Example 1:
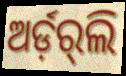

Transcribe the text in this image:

ଅର୍ଡ଼ର୍‌ଲି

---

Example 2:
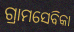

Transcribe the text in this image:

ଗ୍ରାମସେବିକା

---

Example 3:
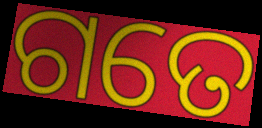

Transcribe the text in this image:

ଗତେ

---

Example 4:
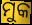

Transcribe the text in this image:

ମୁକ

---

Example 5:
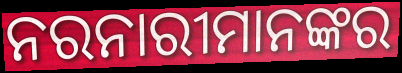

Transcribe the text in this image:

ନରନାରୀମାନଙ୍କର